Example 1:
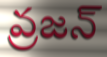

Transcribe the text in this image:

వ్రజన్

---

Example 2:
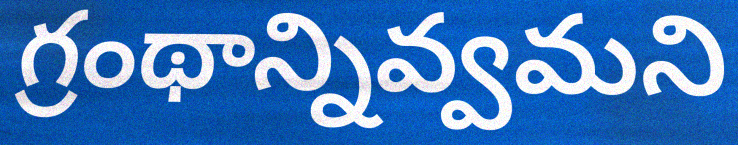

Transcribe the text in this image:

గ్రంథాన్నివ్వమని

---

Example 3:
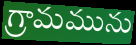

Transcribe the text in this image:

గ్రామమును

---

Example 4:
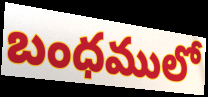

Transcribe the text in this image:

బంధములో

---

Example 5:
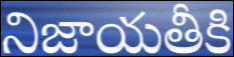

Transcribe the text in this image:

నిజాయతీకి